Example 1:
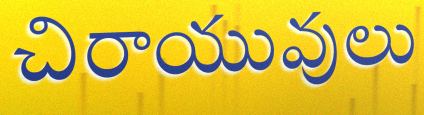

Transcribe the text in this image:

చిరాయువులు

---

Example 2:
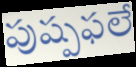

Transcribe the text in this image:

పుష్పఫలే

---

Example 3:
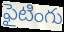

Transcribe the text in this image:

ఫైటింగు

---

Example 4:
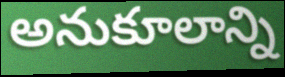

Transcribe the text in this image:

అనుకూలాన్ని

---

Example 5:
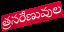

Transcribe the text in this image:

త్రసరేణువుల